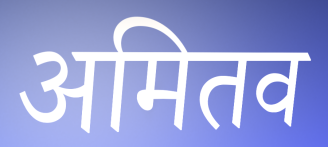
अमितव